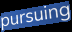
pursuing